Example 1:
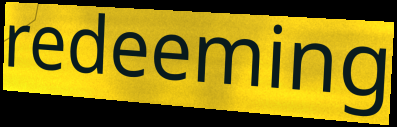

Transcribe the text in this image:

redeeming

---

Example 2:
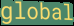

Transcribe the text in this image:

global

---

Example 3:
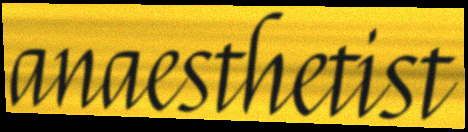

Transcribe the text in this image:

anaesthetist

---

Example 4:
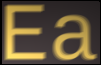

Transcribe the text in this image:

Ea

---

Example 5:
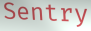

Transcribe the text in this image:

Sentry